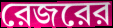
রেজরের